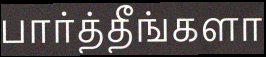
பார்த்தீங்களா